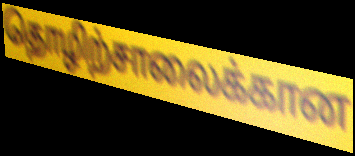
தொழிற்சாலைக்கான